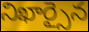
నిఖార్సైన